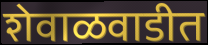
शेवाळवाडीत